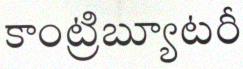
కాంట్రిబ్యూటరీ